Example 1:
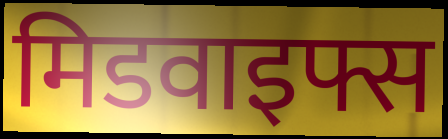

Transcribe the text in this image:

मिडवाइफ्स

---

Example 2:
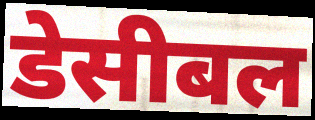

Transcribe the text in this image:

डेसीबल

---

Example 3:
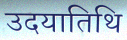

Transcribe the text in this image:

उदयातिथि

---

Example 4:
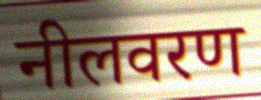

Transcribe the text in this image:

नीलवरण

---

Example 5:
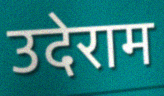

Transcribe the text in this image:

उदेराम